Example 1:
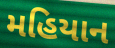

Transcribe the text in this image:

મહિયાન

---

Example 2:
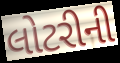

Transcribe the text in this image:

લોટરીની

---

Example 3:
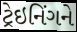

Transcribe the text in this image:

ટ્રેઇનિંગને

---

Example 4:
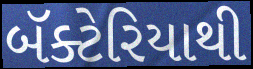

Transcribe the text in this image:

બૅક્ટેરિયાથી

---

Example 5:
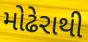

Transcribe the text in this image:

મોઢેરાથી